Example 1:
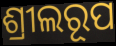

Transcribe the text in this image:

ଶ୍ରୀଲରୂପ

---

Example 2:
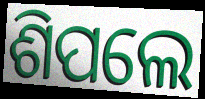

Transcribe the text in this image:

ଶିପଲେ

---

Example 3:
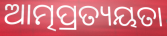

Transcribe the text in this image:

ଆତ୍ମପ୍ରତ୍ୟୟତା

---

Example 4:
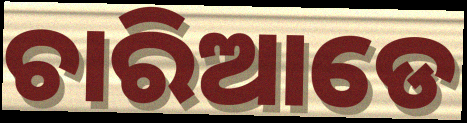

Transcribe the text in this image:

ଚାରିଆଡେ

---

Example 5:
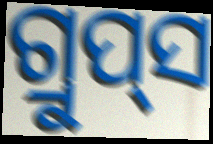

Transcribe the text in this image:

ଗ୍ରୁପ୍‌ସ